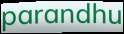
parandhu